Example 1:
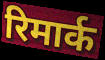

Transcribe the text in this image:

रिमार्क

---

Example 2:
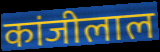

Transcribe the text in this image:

कांजीलाल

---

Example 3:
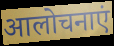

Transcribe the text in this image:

आलोचनाएं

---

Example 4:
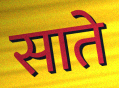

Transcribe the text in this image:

साते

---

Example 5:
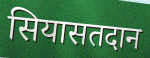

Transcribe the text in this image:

सियासतदान